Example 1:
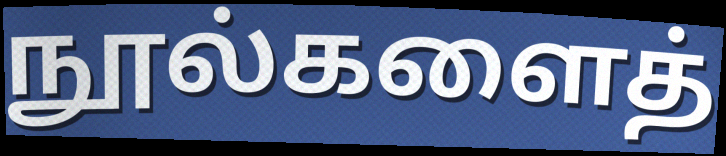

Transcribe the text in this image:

நூல்களைத்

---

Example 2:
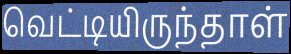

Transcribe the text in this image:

வெட்டியிருந்தாள்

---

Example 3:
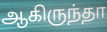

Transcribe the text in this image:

ஆகிருந்தா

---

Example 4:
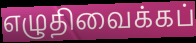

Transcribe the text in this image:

எழுதிவைக்கப்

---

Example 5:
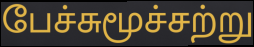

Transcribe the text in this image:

பேச்சுமூச்சற்று